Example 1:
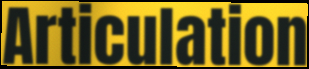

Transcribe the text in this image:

Articulation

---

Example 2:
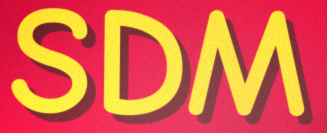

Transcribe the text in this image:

SDM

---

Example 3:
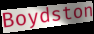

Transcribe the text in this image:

Boydston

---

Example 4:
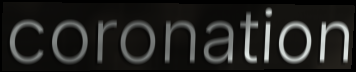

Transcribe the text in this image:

coronation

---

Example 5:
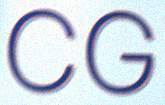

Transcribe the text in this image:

CG